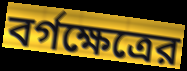
বর্গক্ষেত্রের